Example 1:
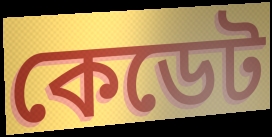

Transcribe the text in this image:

কেডেট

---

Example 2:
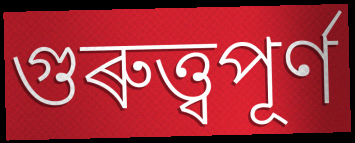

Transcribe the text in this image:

গুৰুত্ত্বপূৰ্ণ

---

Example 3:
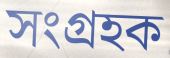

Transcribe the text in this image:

সংগ্ৰহক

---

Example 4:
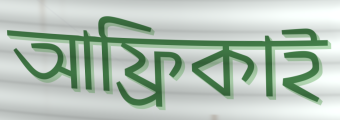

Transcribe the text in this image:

আফ্ৰিকাই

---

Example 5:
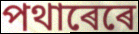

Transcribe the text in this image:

পথাৰেৰে